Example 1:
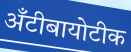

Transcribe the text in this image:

अँटीबायोटीक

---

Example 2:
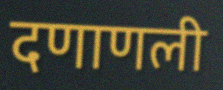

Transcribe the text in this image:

दणाणली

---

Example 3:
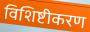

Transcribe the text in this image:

विशिष्टीकरण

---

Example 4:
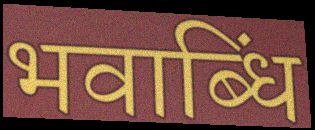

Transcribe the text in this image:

भवाब्धिं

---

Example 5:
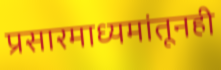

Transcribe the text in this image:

प्रसारमाध्यमांतूनही